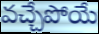
వచ్చేపోయే